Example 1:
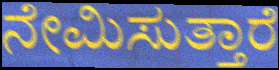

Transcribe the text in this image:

ನೇಮಿಸುತ್ತಾರೆ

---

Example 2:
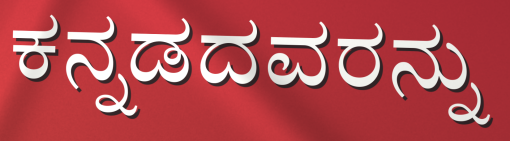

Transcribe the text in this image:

ಕನ್ನಡದವರನ್ನು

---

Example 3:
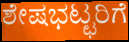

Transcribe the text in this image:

ಶೇಷಭಟ್ಟರಿಗೆ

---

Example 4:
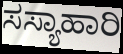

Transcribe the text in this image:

ಸಸ್ಯಾಹಾರಿ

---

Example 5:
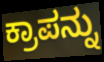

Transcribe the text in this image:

ಕ್ರಾಪನ್ನು